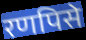
रणपिसे